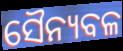
ସୈନ୍ୟବଳ